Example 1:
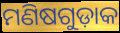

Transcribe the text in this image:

ମଣିଷଗୁଡ଼ାକ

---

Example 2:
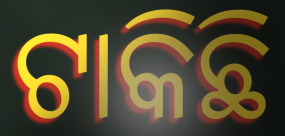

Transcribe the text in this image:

ଟାକିଛି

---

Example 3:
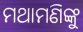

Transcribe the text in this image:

ମଥାମଣିଙ୍କୁ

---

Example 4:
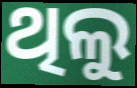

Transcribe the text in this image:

ଥିଲୁ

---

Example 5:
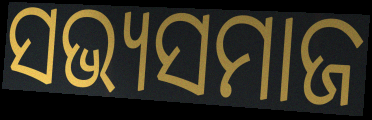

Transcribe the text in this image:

ସଭ୍ୟସମାଜ